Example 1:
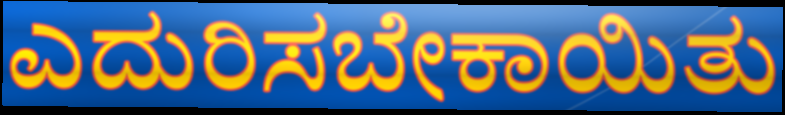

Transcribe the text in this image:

ಎದುರಿಸಬೇಕಾಯಿತು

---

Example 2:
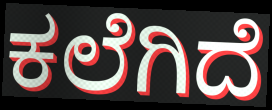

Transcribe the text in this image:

ಕಲೆಗಿದೆ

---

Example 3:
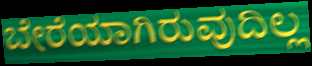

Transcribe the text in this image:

ಬೇರೆಯಾಗಿರುವುದಿಲ್ಲ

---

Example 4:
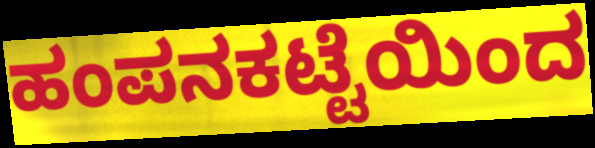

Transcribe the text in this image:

ಹಂಪನಕಟ್ಟೆಯಿಂದ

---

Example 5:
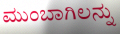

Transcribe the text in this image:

ಮುಂಬಾಗಿಲನ್ನು